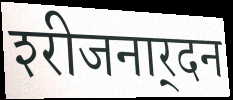
श्रीजनार्दन